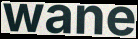
wane